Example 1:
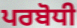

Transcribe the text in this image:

ਪਰਬੋਧੀ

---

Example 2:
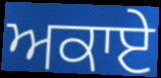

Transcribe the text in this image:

ਅਕਾਏ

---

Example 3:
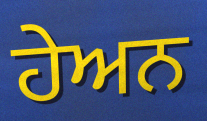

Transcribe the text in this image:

ਹੇਅਨ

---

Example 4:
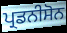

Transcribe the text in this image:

ਪ੍ਰਡਨੀਸੋਨ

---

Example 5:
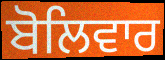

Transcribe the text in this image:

ਬੋਲਿਵਾਰ